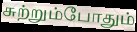
சுற்றும்போதும்